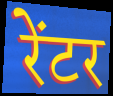
रेंटर